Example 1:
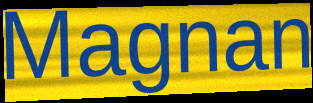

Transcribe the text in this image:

Magnan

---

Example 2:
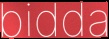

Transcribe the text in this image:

bidda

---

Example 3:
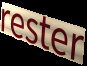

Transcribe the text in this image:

rester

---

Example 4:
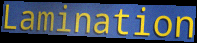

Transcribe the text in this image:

Lamination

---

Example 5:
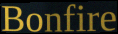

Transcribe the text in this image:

Bonfire